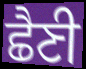
ਛੈਣੀ